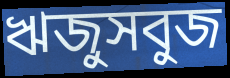
ঋজুসবুজ